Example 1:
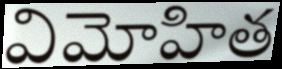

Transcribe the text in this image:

విమోహిత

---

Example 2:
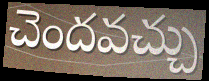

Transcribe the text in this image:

చెందవచ్చు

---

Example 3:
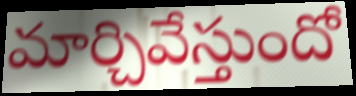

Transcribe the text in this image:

మార్చివేస్తుందో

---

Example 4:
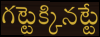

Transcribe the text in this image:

గట్టెక్కినట్టే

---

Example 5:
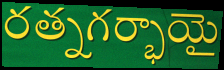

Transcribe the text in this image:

రత్నగర్భాయై